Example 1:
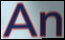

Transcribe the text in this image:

An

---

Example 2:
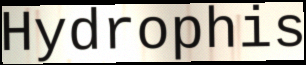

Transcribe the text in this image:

Hydrophis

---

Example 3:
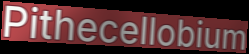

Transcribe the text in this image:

Pithecellobium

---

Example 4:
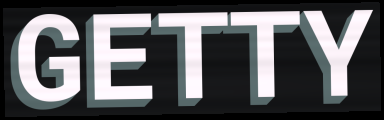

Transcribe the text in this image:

GETTY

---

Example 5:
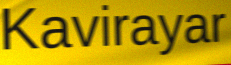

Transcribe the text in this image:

Kavirayar